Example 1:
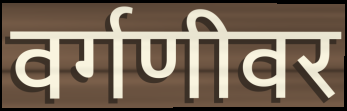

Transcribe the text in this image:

वर्गणीवर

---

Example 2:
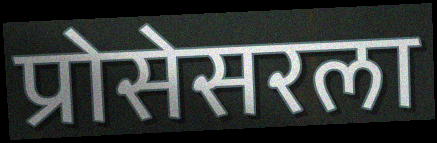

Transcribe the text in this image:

प्रोसेसरला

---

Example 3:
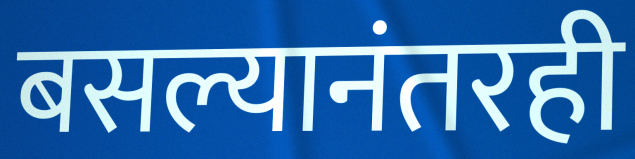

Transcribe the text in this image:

बसल्यानंतरही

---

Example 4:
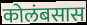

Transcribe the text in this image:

कोलंबसास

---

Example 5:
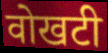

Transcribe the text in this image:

वोखटी